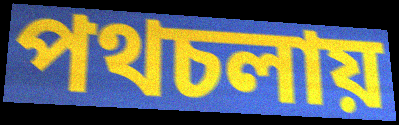
পথচলায়